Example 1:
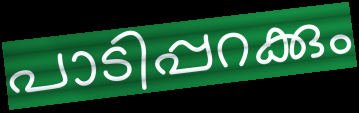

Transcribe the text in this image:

പാടിപ്പറക്കും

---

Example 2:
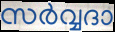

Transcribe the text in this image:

സർവ്വദാ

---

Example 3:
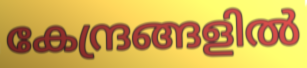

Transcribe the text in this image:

കേന്ദ്രങ്ങളിൽ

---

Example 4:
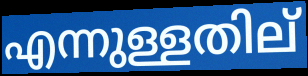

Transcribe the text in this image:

എന്നുള്ളതില്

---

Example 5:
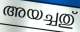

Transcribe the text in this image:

അയച്ചതു്